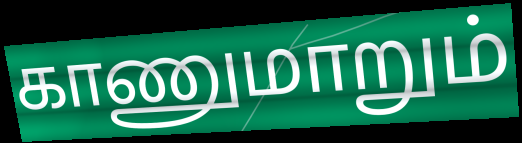
காணுமாறும்